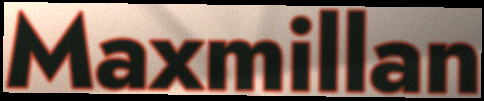
Maxmillan